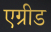
एग्रीड